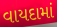
વાયદામાં